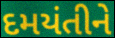
દમયંતીને